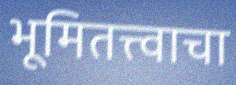
भूमितत्त्वाचा